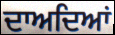
ਦਾਅਦਿਆਂ